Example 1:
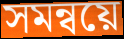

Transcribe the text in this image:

সমন্বয়ে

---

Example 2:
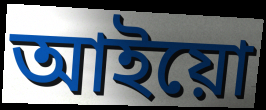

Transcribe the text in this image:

আইয়ো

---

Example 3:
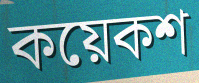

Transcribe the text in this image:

কয়েকশ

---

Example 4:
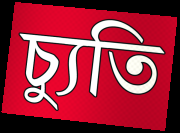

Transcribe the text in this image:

চ্যুতি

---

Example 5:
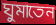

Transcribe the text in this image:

ঘুমাতেন